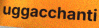
uggacchanti